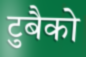
टुबैको